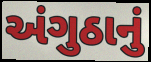
અંગુઠાનું